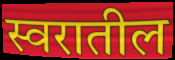
स्वरातील